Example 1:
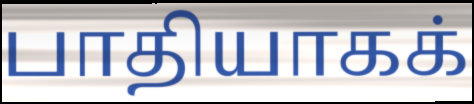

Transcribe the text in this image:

பாதியாகக்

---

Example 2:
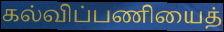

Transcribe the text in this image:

கல்விப்பணியைத்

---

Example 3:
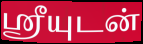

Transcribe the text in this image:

ஸ்ரீயுடன்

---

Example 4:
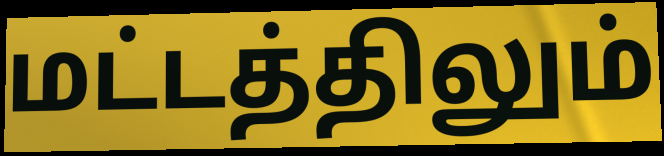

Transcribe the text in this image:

மட்டத்திலும்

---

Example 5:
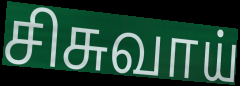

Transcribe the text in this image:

சிசுவாய்